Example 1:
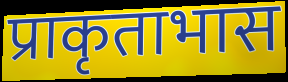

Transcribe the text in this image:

प्राकृताभास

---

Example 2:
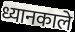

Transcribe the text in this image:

ध्यानकाले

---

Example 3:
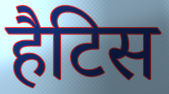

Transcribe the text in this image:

हैटिस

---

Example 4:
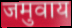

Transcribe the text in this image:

जमुवाय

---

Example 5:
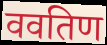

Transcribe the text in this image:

ववतिण